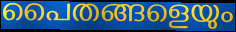
പൈതങ്ങളെയും